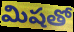
మిషతో